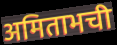
अमिताभची